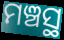
ମଞ୍ଚସ୍ଥ